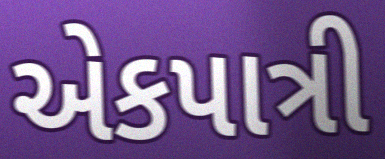
એકપાત્રી